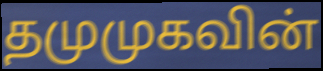
தமுமுகவின்